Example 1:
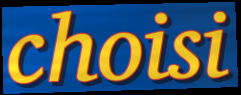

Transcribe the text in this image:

choisi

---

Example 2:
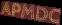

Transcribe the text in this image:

APMDC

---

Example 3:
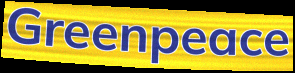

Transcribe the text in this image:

Greenpeace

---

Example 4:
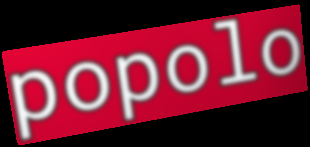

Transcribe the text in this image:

popolo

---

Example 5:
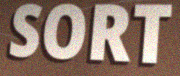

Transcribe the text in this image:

SORT